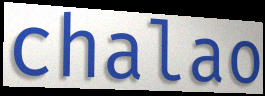
chalao